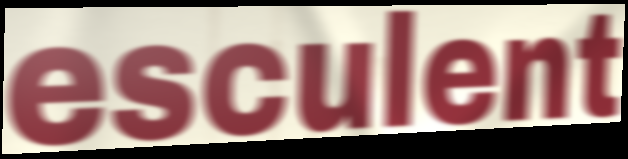
esculent